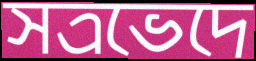
সত্ৰভেদে